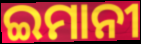
ଇମାନୀ